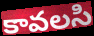
కావలసి